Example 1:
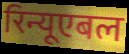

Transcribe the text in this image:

रिन्यूएबल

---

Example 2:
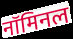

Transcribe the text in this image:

नॉमिनल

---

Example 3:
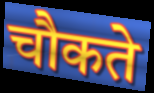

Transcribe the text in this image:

चौकते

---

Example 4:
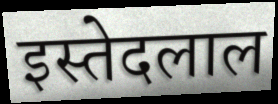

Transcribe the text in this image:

इस्तेदलाल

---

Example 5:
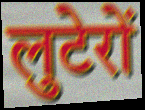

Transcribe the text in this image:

लुटेरों